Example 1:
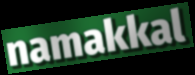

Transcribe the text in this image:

namakkal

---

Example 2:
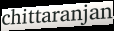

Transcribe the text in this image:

chittaranjan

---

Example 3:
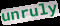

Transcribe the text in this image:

unruly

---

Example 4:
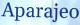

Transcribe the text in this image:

Aparajeo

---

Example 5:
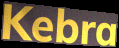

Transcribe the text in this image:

Kebra